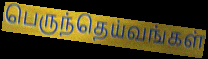
பெருந்தெய்வங்கள்